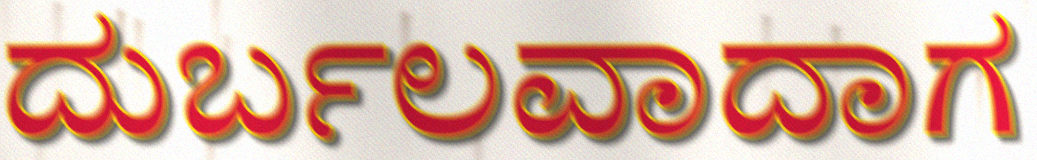
ದುರ್ಬಲವಾದಾಗ